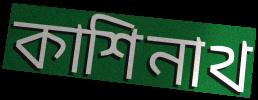
কাশিনাথ